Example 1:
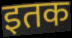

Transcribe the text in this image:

इतक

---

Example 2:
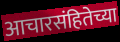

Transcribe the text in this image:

आचारसंहितेच्या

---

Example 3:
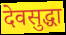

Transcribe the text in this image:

देवसुद्धा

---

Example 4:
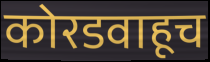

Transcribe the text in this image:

कोरडवाहूच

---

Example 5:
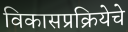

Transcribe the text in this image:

विकासप्रक्रियेचे